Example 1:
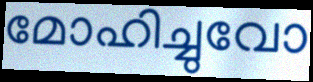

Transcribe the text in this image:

മോഹിച്ചുവോ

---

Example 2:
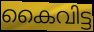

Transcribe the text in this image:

കൈവിട്ട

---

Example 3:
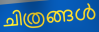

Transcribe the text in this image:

ചിത്രങ്ങൾ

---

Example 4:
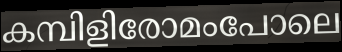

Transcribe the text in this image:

കമ്പിളിരോമംപോലെ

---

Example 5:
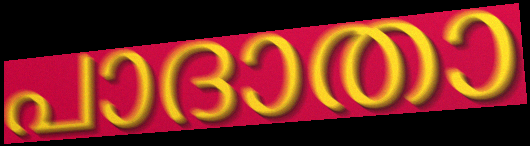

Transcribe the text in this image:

പാദാതാ